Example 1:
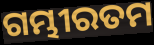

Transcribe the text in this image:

ଗମ୍ଭୀରତମ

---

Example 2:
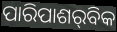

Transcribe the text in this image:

ପାରିପାଶର୍‌ବିକ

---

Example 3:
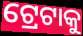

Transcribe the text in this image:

ଟ୍ରେଟାକୁ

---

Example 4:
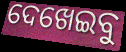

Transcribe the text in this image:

ଦେଖେଇବୁ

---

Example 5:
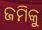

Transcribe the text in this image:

ଜମିକୁ